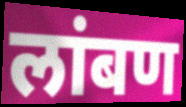
लांबण